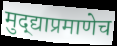
मुद्द्याप्रमाणेच